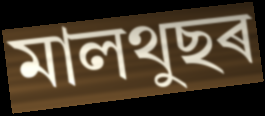
মালথুছৰ